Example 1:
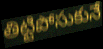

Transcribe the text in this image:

తిట్టిపోసుకునే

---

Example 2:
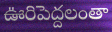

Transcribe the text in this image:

ఊరిపెద్దలంతా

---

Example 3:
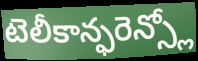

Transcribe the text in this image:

టెలీకాన్ఫరెన్స్లో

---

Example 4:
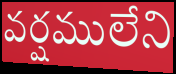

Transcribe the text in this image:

వర్షములేని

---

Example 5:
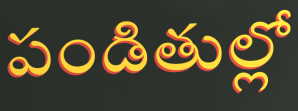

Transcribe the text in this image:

పండితుల్లో